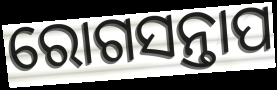
ରୋଗସନ୍ତାପ